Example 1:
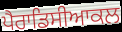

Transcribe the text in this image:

ਪੈਰਾਡਿਸੀਆਕਲ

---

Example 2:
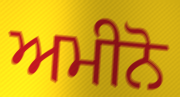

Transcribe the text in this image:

ਅਮੀਨੋ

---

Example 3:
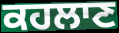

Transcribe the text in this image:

ਕਹਲਾਣ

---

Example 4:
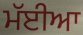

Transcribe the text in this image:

ਮੱਈਆ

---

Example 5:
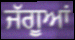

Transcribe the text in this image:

ਜੱਗੂਆਂ